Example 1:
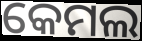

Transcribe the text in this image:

କେମଲ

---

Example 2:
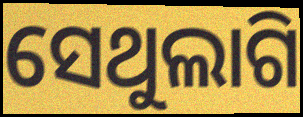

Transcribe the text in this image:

ସେଥୁଲାଗି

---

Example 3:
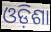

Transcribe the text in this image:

ଓଡ଼ିଶା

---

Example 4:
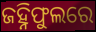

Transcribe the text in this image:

ଜହ୍ନିଫୁଲରେ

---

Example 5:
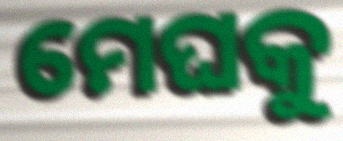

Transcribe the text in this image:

ମେଘକୁ